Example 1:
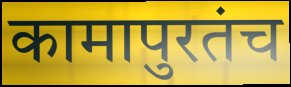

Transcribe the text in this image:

कामापुरतंच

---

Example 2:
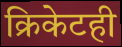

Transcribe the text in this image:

क्रिकेटही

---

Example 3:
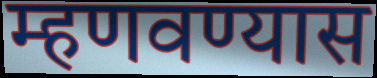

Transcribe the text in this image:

म्हणवण्यास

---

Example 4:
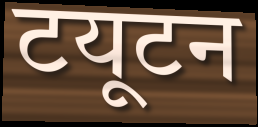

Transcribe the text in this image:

टयूटन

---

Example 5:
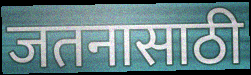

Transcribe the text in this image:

जतनासाठी